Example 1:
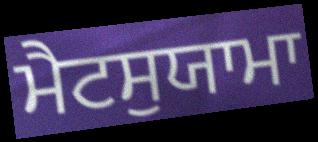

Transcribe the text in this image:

ਮੈਟਸੁਯਾਮਾ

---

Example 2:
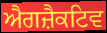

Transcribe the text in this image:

ਐਗਜ਼ੈਕਟਿਵ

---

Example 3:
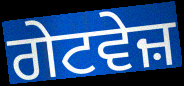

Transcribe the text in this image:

ਗੇਟਵੇਜ਼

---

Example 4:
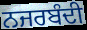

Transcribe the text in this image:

ਨਜਰਬੰਦੀ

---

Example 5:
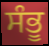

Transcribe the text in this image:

ਸੰਭੂ